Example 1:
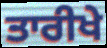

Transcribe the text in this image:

ਤਾਰੀਖੇ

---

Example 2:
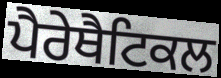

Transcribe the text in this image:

ਪੈਰੇਥੈਟਿਕਲ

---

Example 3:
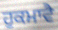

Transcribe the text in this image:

ਹੁਕਮਾਵੈ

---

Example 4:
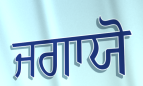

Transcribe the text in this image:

ਜਗਾਯੋ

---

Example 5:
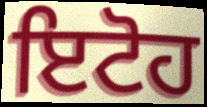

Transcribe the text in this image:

ਇਟੋਹ